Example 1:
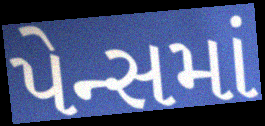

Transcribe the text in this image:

પેન્સમાં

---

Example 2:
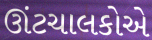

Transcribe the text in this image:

ઊંટચાલકોએ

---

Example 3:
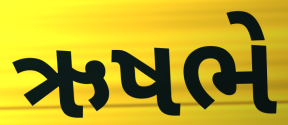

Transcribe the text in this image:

ઋષભે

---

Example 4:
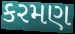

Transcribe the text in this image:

કરમણ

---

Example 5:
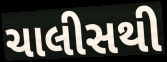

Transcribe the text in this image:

ચાલીસથી